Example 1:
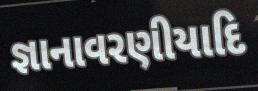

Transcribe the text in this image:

જ્ઞાનાવરણીયાદિ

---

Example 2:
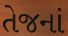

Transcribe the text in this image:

તેજનાં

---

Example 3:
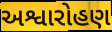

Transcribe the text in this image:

અશ્વારોહણ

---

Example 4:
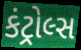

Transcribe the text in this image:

કંટ્રોલ્સ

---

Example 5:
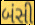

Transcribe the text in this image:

બંસી